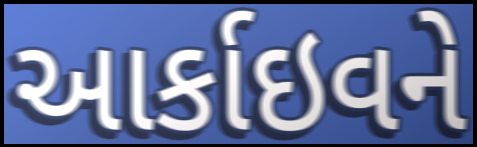
આર્કાઇવને